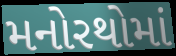
મનોરથોમાં